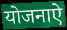
योजनाऐ